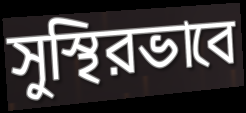
সুস্থিরভাবে